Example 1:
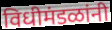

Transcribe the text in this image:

विधीमंडळांनी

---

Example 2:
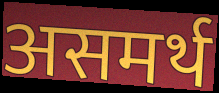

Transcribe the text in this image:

असमर्थ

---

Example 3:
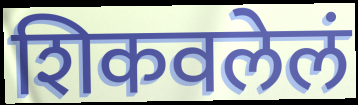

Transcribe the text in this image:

शिकवलेलं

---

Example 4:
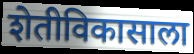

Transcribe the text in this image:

शेतीविकासाला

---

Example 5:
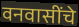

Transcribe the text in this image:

वनवासींचे